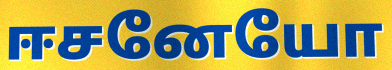
ஈசனேயோ